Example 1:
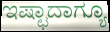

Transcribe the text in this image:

ಇಷ್ಟಾದಾಗ್ಯೂ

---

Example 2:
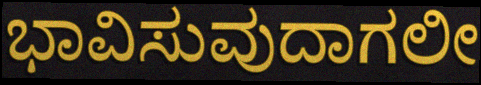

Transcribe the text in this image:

ಭಾವಿಸುವುದಾಗಲೀ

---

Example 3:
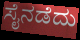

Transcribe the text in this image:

ಸೈನಡೆದು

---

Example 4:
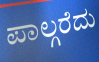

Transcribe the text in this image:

ಪಾಲ್ಗರೆದು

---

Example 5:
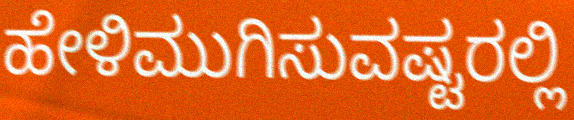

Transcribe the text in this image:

ಹೇಳಿಮುಗಿಸುವಷ್ಟರಲ್ಲಿ